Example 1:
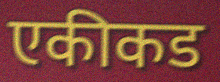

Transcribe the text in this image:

एकीकड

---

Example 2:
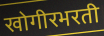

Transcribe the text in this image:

खोगीरभरती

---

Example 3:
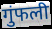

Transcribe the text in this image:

गुंफली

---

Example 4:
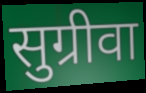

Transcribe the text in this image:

सुग्रीवा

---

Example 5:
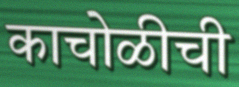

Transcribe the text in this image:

काचोळीची